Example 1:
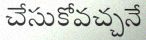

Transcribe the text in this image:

చేసుకోవచ్చనే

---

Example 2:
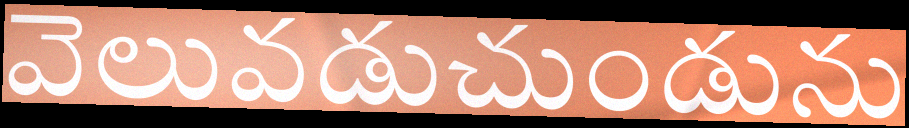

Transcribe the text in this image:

వెలువడుచుండును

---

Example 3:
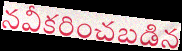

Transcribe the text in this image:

నవీకరించబడిన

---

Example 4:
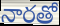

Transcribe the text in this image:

నారతో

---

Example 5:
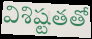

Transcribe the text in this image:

విశిష్టతతో